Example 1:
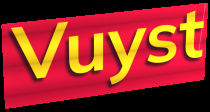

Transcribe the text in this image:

Vuyst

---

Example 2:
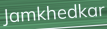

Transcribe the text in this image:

Jamkhedkar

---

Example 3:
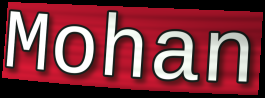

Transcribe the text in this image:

Mohan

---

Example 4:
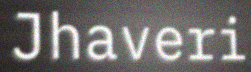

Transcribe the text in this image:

Jhaveri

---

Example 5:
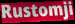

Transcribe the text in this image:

Rustomji